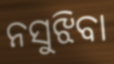
ନସୁଝିବା